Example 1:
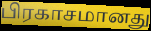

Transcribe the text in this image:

பிரகாசமானது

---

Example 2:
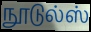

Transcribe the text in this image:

நூடுல்ஸ்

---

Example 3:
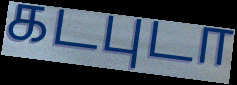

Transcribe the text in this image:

கடபுடா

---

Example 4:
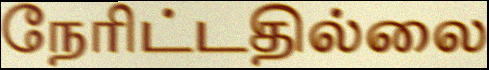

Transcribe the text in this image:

நேரிட்டதில்லை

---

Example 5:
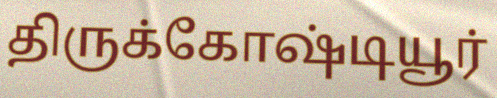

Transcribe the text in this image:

திருக்கோஷ்டியூர்